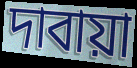
দাবায়া